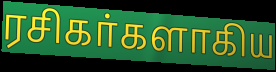
ரசிகர்களாகிய